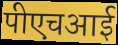
पीएचआई